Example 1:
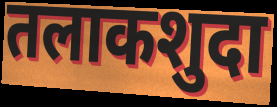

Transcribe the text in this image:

तलाकशुदा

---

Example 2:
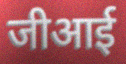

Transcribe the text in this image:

जीआई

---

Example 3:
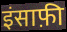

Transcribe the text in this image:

इंसाफ़ी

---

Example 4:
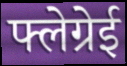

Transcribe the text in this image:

फ्लेग्रेई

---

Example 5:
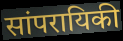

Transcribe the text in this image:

सांपरायिकी